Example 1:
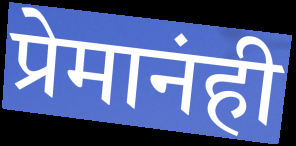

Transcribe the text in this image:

प्रेमानंही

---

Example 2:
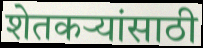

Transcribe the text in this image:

शेतकऱ्यांसाठी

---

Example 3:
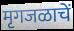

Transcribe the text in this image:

मृगजळाचें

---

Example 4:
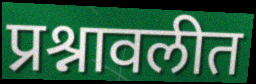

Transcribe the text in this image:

प्रश्नावलीत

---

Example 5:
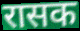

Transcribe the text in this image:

रासक